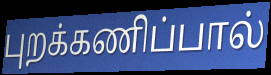
புறக்கணிப்பால்